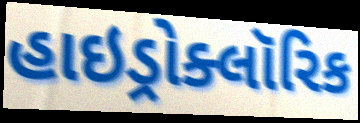
હાઇડ્રોક્લૉરિક